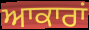
ਆਕਾਰਾਂ